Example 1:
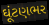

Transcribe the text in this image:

ઘૂંટણભર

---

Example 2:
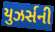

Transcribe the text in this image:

યુઝર્સની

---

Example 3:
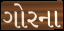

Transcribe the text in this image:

ગોરના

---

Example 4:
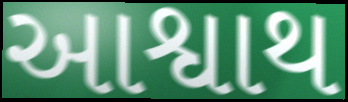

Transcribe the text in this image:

આશ્વાથ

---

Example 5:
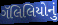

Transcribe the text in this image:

ગૅલિલિયોનું